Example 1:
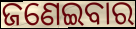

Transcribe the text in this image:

ଜଣେଇବାର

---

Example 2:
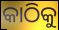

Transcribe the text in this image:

କାଠିକୁ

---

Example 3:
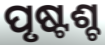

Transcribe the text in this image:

ପୃଷ୍ଟଶ୍ଚ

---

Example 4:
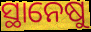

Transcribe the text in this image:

ସ୍ଥାନେଷୁ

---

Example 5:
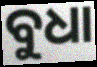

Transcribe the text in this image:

ବୁଧା